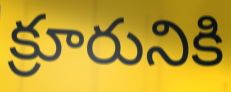
క్రూరునికి